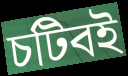
চটিবই